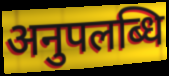
अनुपलब्धि